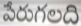
పేరుగలది